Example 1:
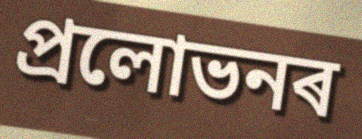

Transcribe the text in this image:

প্ৰলোভনৰ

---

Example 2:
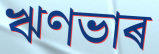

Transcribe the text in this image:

ঋণভাৰ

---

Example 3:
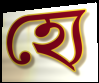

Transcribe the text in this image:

হ্যে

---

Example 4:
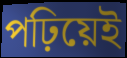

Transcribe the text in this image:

পঢ়িয়েই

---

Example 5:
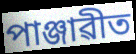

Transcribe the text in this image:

পাঞ্জাৱীত